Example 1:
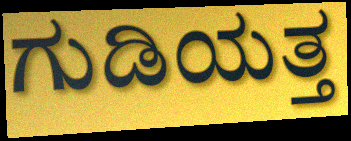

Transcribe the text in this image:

ಗುಡಿಯತ್ತ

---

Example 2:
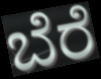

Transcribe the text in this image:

ಬೆರೆ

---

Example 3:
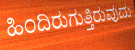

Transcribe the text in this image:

ಹಿಂದಿರುಗುತ್ತಿರುವುದು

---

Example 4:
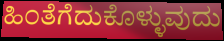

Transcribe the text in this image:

ಹಿಂತೆಗೆದುಕೊಳ್ಳುವುದು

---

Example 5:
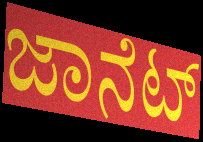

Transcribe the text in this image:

ಜಾನೆಟ್